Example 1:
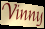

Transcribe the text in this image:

Vinny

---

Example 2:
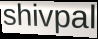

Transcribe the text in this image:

shivpal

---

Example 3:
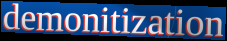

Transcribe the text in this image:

demonitization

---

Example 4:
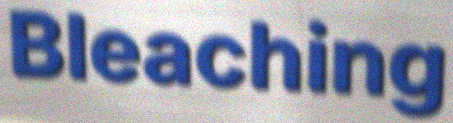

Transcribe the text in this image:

Bleaching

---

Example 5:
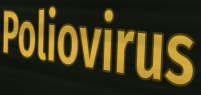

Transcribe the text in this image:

Poliovirus